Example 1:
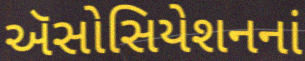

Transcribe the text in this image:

ઍસોસિયેશનનાં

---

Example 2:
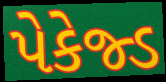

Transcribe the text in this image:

પેકેજ્ડ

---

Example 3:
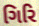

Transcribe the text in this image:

ગિરિ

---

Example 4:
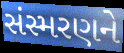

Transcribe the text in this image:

સંસ્મરણને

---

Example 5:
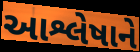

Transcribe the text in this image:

આશ્લેષાને